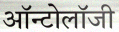
ऑन्टोलॉजी